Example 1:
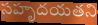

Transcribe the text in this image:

సహృదయతని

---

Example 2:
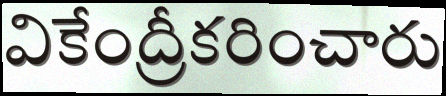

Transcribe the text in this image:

వికేంద్రీకరించారు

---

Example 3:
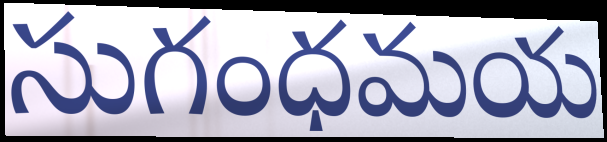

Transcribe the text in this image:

సుగంధమయ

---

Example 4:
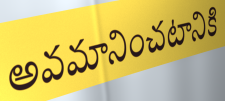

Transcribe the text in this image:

అవమానించటానికి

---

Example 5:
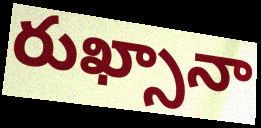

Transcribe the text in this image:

రుఖ్సానా